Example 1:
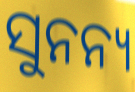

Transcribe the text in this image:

ସୁନନ୍ୟ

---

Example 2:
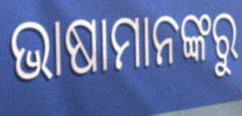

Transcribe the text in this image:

ଭାଷାମାନଙ୍କରୁ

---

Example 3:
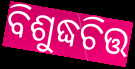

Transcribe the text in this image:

ବିଶୁଦ୍ଧଚିତ୍ତ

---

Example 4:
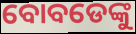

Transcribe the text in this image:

ବୋବଡେଙ୍କୁ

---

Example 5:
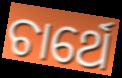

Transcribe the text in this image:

ଚାର୍ଥେ